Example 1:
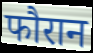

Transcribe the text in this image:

फौरान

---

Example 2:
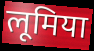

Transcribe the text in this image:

लूमिया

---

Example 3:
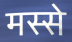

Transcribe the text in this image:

मस्से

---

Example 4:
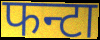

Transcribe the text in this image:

फन्टा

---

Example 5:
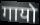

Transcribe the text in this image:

गायो